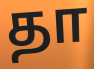
தா